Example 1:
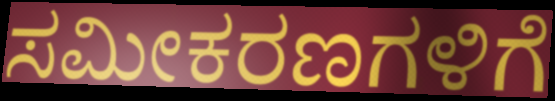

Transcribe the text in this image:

ಸಮೀಕರಣಗಳಿಗೆ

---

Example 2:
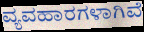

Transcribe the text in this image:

ವ್ಯವಹಾರಗಳಾಗಿವೆ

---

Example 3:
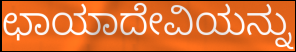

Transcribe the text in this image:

ಛಾಯಾದೇವಿಯನ್ನು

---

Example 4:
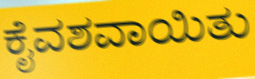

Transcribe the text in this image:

ಕೈವಶವಾಯಿತು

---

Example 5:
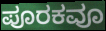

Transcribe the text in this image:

ಪೂರಕವೂ